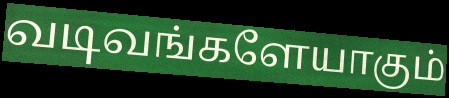
வடிவங்களேயாகும்